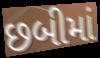
છબીમાં